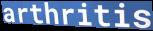
arthritis